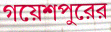
গয়েশপুরের